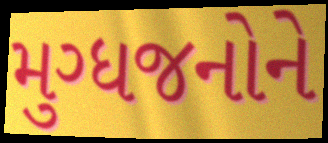
મુગ્ધજનોને